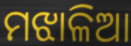
ମଝାଳିଆ